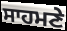
ਸਾਹਮਣੇ